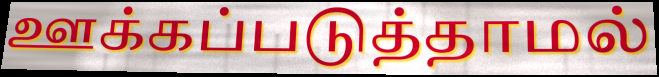
ஊக்கப்படுத்தாமல்